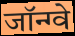
जॉन्ग्वे